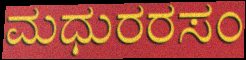
ಮಧುರರಸಂ